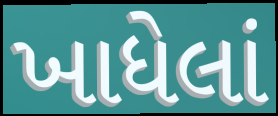
ખાધેલાં